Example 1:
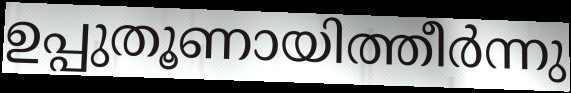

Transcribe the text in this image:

ഉപ്പുതൂണായിത്തീർന്നു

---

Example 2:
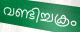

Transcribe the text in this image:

വണ്ടിച്ചക്രം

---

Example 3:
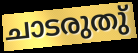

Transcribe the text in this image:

ചാടരുതു്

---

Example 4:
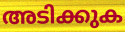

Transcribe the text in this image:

അടിക്കുക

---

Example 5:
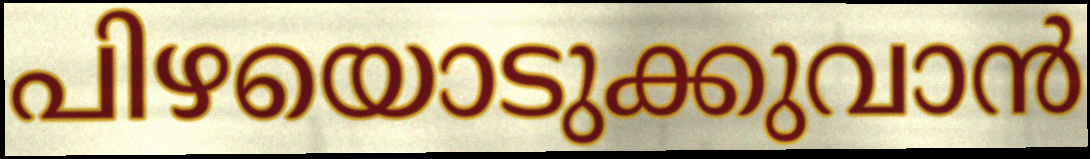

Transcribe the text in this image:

പിഴയൊടുക്കുവാൻ